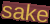
sake